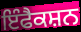
ਇੰਫੈਕਸ਼ਨ